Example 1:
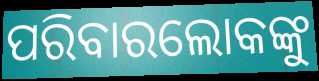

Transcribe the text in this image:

ପରିବାରଲୋକଙ୍କୁ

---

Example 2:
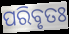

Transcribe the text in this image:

ପରିବୃତଃ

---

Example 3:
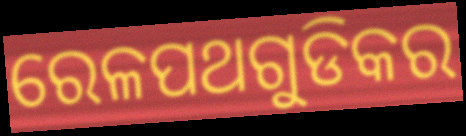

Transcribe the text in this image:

ରେଳପଥଗୁଡିକର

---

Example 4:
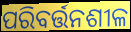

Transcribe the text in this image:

ପରିବର୍ତ୍ତନଶୀଳ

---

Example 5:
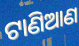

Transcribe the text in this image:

ଟାଣିଆଣ